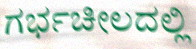
ಗರ್ಭಚೀಲದಲ್ಲಿ